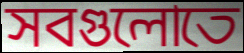
সবগুলোতে